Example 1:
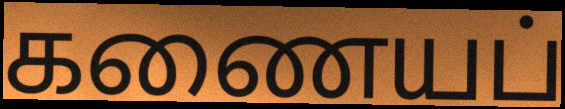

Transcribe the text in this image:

கணையப்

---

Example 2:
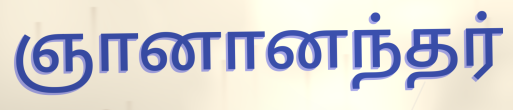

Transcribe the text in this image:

ஞானானந்தர்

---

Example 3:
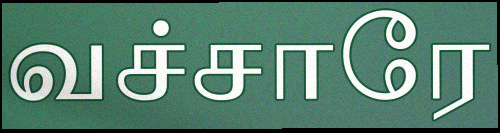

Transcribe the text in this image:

வச்சாரே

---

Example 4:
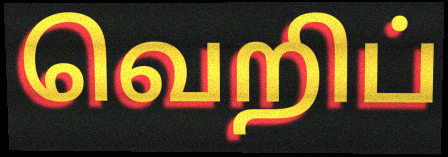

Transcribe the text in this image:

வெறிப்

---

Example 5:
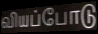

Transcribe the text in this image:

வியப்போடு